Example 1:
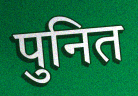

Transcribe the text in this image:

पुनित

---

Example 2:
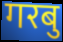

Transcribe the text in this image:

गरबु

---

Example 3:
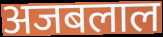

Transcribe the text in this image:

अजबलाल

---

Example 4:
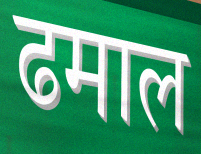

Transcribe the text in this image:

ढमाल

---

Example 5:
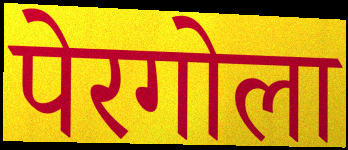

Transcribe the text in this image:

पेरगोला